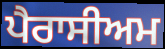
ਪੈਰਾਸੀਅਮ